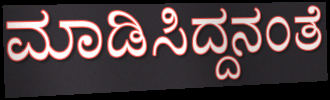
ಮಾಡಿಸಿದ್ದನಂತೆ